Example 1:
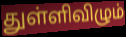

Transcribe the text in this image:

துள்ளிவிழும்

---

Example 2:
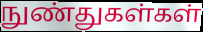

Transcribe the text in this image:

நுண்துகள்கள்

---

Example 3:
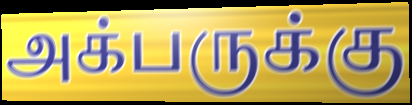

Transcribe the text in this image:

அக்பருக்கு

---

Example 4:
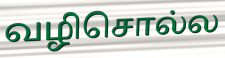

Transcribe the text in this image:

வழிசொல்ல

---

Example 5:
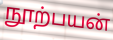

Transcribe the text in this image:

நூற்பயன்